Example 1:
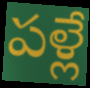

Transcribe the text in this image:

పళ్లే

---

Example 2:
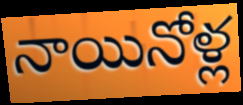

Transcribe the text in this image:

నాయినోళ్ల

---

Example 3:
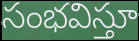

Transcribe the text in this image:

సంభవిస్తూ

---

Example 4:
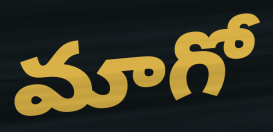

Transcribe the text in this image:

మాగో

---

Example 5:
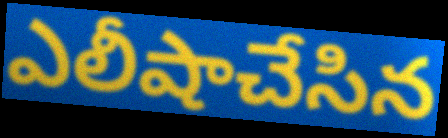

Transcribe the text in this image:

ఎలీషాచేసిన